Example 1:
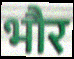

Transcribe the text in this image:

भौर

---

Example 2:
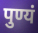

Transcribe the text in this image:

पुण्यं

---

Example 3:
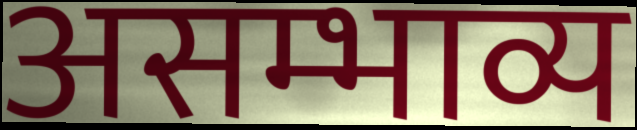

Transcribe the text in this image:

असम्भाव्य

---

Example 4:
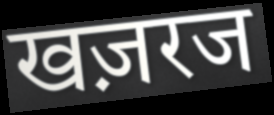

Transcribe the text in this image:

खज़रज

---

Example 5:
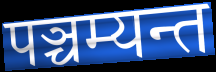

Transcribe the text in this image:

पञ्चम्यन्त